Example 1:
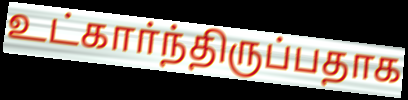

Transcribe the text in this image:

உட்கார்ந்திருப்பதாக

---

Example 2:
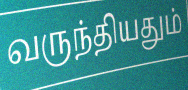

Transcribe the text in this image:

வருந்தியதும்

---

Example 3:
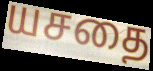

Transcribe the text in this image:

யசதை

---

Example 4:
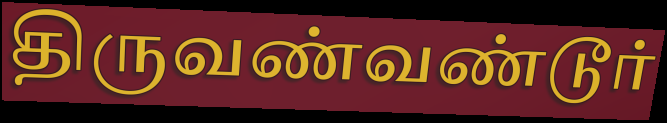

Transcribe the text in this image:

திருவண்வண்டூர்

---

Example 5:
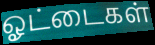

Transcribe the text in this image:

ஓட்டைகள்